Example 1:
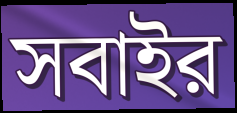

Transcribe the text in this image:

সবাইর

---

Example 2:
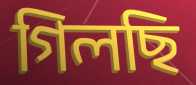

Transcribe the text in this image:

গিলছি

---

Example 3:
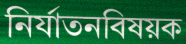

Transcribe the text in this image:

নির্যাতনবিষয়ক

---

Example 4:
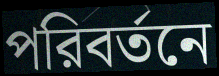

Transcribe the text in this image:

পরিবর্তনে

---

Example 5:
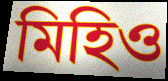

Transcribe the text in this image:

মিহিও